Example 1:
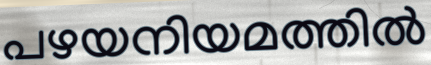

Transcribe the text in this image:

പഴയനിയമത്തിൽ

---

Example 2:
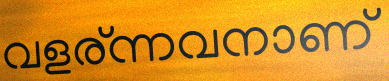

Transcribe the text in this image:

വളര്ന്നവനാണ്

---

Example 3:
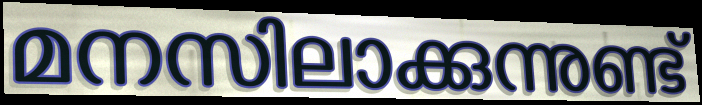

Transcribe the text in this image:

മനസിലാക്കുന്നുണ്ട്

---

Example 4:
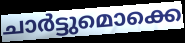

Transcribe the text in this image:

ചാർട്ടുമൊക്കെ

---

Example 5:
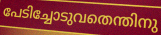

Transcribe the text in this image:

പേടിച്ചോടുവതെന്തിനു